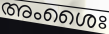
അംശൈഃ